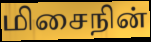
மிசைநின்